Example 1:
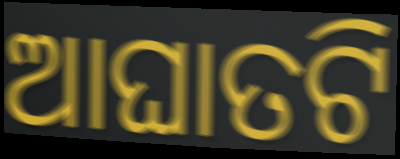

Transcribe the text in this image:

ଆଘାତଟି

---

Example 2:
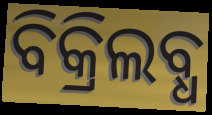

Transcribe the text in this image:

ବିକ୍ରିଲବ୍ଧ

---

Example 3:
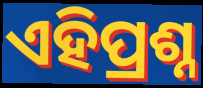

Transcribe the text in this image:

ଏହିପ୍ରଶ୍ନ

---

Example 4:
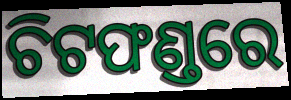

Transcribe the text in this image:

ଚିଟଫଣ୍ଡରେ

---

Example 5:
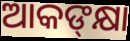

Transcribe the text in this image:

ଆକଙ୍‍କ୍ଷା